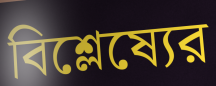
বিশ্লেষ্যের